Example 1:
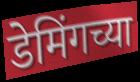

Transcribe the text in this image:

डेमिंगच्या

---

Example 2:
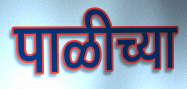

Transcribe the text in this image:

पाळीच्या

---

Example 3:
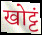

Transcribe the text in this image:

खोट्टं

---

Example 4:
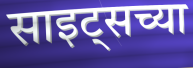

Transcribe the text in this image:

साइट्सच्या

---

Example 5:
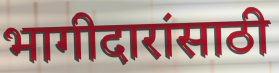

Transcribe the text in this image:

भागीदारांसाठी